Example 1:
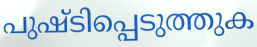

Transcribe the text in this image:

പുഷ്ടിപ്പെടുത്തുക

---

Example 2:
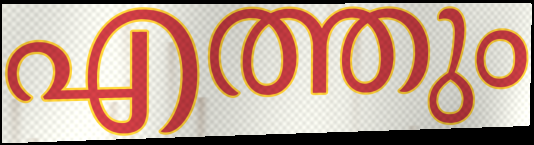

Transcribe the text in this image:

എത്തും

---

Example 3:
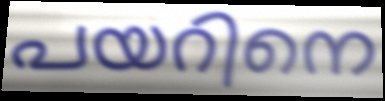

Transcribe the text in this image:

പയറിനെ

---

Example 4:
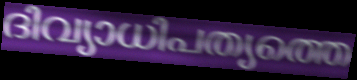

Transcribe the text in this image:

ദിവ്യാധിപത്യത്തെ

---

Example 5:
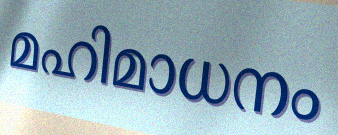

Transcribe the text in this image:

മഹിമാധനം